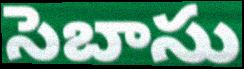
సెబాసు